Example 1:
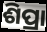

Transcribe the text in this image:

ଶିପ୍ରା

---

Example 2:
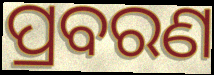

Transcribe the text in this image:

ପ୍ରବରଣ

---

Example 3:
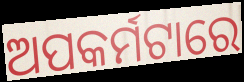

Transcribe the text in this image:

ଅପକର୍ମଟାରେ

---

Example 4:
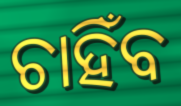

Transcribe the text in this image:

ଚାହିଁବ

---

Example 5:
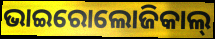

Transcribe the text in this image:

ଭାଇରୋଲୋଜିକାଲ୍